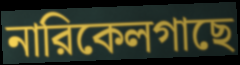
নারিকেলগাছে